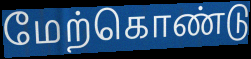
மேற்கொண்டு